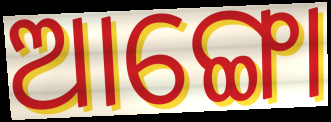
ଆଙ୍ଗୋ